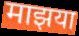
माझया